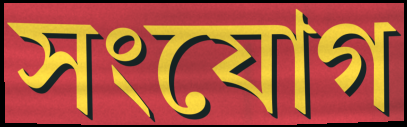
সংযোগ